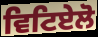
ਵਿਟਿਏਲੋ